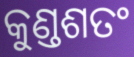
କୁଣ୍ଡଶତଂ